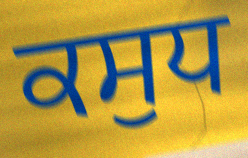
ਕਸੁਧ